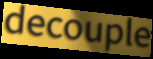
decouple